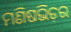
ମଣିଷଭିଡ଼ର